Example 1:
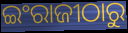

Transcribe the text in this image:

ଇଂରାଜୀଠାରୁ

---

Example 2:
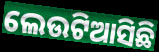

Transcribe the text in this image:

ଲେଉଟିଆସିଛି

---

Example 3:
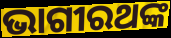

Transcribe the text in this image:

ଭାଗୀରଥଙ୍କ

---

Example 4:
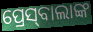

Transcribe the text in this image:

ପ୍ରେସ୍‌ବାଲାଙ୍କ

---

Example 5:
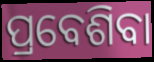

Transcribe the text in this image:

ପ୍ରବେଶିବା